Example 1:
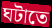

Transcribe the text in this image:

ঘটাতে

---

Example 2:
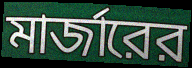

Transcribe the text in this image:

মার্জারের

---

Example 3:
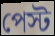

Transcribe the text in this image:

পেস্ট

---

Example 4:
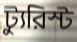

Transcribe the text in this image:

ট্যুরিস্ট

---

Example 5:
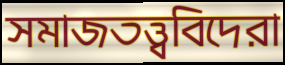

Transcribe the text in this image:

সমাজতত্ত্ববিদেরা